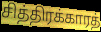
சித்திரக்காரத்